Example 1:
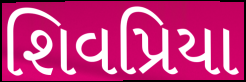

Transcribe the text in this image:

શિવપ્રિયા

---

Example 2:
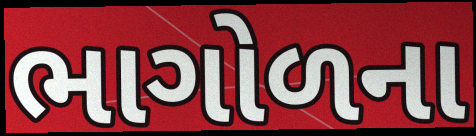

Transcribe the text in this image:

ભાગોળના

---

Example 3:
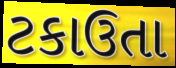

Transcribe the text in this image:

ટકાઉતા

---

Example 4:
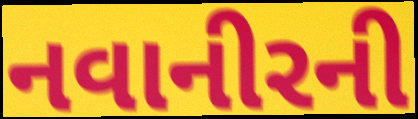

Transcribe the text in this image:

નવાનીરની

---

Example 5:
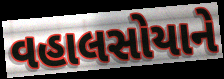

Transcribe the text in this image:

વહાલસોયાને